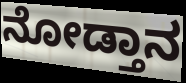
ನೋಡ್ತಾನ